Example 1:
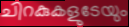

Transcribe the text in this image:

ചിറകുകളുടേയും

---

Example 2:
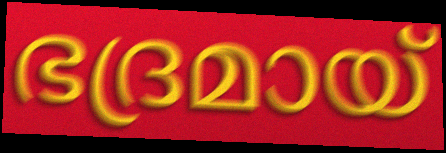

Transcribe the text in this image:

ഭദ്രമായ്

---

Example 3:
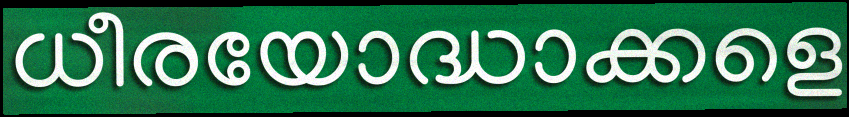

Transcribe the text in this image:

ധീരയോദ്ധാക്കളെ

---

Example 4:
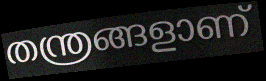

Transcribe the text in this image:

തന്ത്രങ്ങളാണ്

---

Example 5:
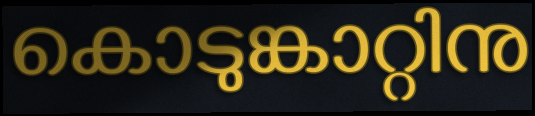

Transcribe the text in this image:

കൊടുങ്കാറ്റിനു